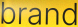
brand